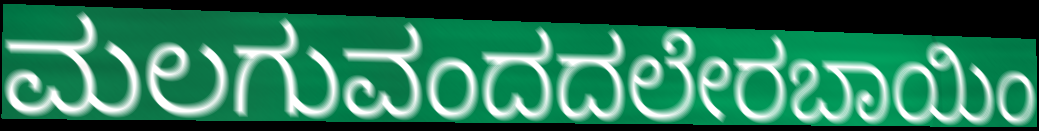
ಮಲಗುವಂದದಲೇರಬಾಯಿಂ